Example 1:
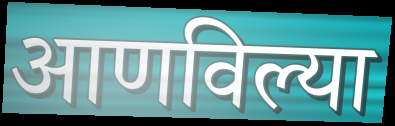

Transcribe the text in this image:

आणविल्या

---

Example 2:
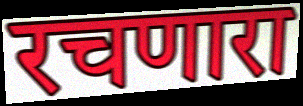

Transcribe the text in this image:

रचणारा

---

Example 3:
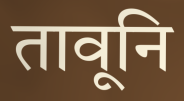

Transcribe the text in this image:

तावूनि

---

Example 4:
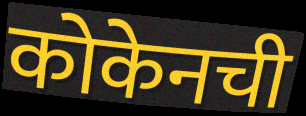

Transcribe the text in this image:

कोकेनची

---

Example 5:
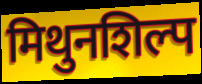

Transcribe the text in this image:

मिथुनशिल्प